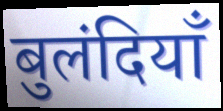
बुलंदियाँ